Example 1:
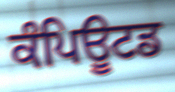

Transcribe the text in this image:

ਕੰਪਿਊਟਡ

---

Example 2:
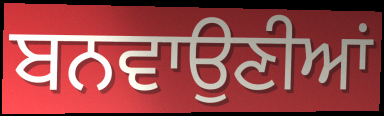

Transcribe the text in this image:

ਬਨਵਾਉਣੀਆਂ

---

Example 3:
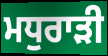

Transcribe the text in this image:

ਮਧੁਰਾੜੀ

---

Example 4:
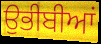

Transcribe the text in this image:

ਉਭੀਬੀਆਂ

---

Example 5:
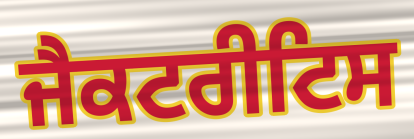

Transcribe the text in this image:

ਜੈਕਟਰੀਟਿਸ